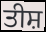
ਤੀਸ਼